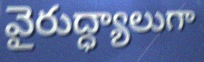
వైరుద్ధ్యాలుగా